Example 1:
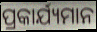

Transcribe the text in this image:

ପ୍ରକାର୍ଯ୍ୟମାନ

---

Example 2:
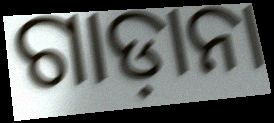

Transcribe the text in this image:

ଗାଡ଼ାନା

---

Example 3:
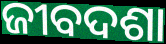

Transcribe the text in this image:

ଜୀବଦଶା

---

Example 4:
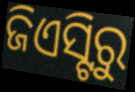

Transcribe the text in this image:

ଜିଏସ୍ଟିରୁ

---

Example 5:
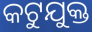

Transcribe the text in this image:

କଟୁଯୁକ୍ତ